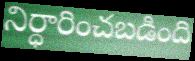
నిర్ధారించబడింది